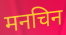
मनचिन